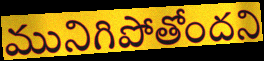
మునిగిపోతోందని